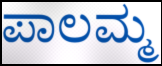
ಪಾಲಮ್ಮ